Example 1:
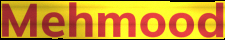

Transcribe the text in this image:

Mehmood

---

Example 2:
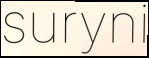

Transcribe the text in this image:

suryni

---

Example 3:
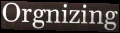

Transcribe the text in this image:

Orgnizing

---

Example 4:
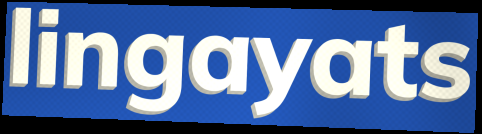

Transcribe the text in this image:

lingayats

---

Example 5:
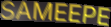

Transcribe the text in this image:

SAMEEPE